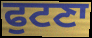
ਫੁਟਣਾ